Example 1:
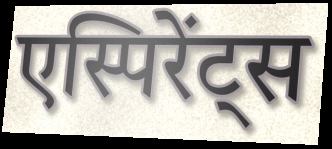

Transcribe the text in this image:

एस्पिरेंट्स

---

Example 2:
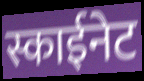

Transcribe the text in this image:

स्काईनेट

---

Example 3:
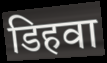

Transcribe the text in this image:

डिहवा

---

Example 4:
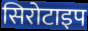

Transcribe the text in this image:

सिरोटाइप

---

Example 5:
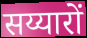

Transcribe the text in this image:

सय्यारों